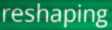
reshaping